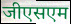
जीएसएम